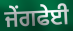
ਜੇਂਗਫੇਈ